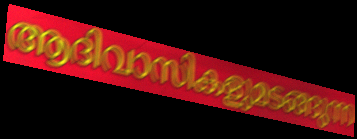
ആദിവാസികളുമടങ്ങുന്ന